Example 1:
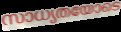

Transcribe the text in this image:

സാധ്യതയോടെ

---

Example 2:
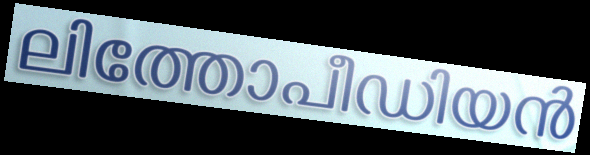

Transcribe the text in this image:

ലിത്തോപീഡിയൻ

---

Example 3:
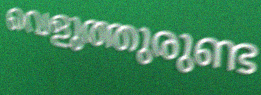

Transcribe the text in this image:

വെളുത്തുരുണ്ട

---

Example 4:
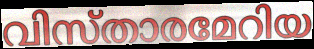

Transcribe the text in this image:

വിസ്താരമേറിയ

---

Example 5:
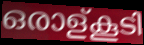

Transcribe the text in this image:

ഒരാള്കൂടി